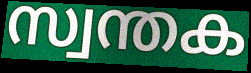
സ്വന്തക